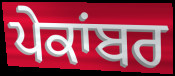
ਪੇਕਾਂਬਰ